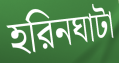
হরিনঘাটা